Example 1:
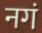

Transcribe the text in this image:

नगं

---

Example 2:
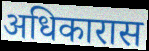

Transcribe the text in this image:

अधिकारास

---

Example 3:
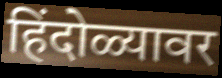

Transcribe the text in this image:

हिंदोळ्यावर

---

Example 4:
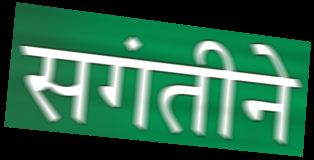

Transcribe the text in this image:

सगंतीने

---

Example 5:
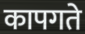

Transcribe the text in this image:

कापगते